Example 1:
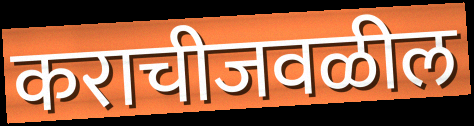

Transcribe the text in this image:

कराचीजवळील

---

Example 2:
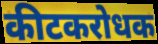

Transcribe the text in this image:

कीटकरोधक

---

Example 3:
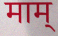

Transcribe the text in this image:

माम्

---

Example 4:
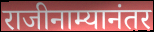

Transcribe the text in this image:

राजीनाम्यानंतर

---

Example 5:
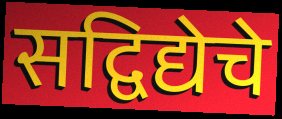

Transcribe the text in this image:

सद्विद्येचे